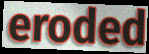
eroded